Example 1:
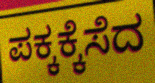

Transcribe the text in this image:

ಪಕ್ಕಕ್ಕೆಸೆದ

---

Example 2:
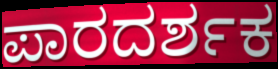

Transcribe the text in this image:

ಪಾರದರ್ಶಕ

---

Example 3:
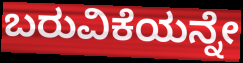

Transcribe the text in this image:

ಬರುವಿಕೆಯನ್ನೇ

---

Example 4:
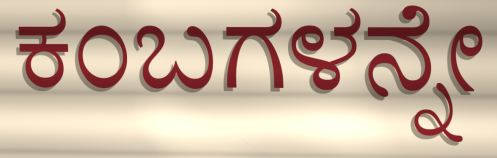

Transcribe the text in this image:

ಕಂಬಗಳನ್ನೇ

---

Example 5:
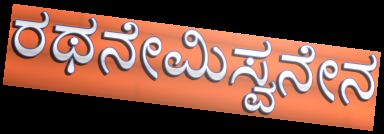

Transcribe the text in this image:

ರಥನೇಮಿಸ್ವನೇನ